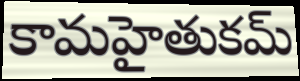
కామహైతుకమ్